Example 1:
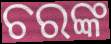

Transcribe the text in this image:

ଚରଙ୍କ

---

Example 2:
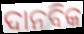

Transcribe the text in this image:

ଦାନବିକ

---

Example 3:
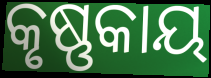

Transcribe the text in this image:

କୃଷ୍ଣକାୟ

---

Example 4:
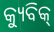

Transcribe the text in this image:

କ୍ୟୁବିକ୍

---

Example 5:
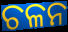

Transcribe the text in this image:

ଚଳନ